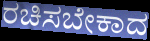
ರಚಿಸಬೇಕಾದ